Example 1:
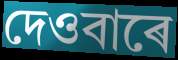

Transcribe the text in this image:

দেওবাৰে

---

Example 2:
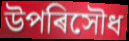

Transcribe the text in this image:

উপৰিসৌধ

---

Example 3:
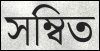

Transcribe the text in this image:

সম্বিত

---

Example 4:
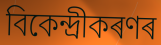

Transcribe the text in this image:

বিকেন্দ্ৰীকৰণৰ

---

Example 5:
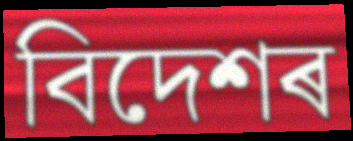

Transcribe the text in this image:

বিদেশৰ